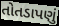
તોતડાપણું